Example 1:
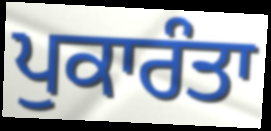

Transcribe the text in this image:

ਪੁਕਾਰੰਤਾ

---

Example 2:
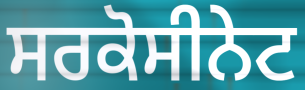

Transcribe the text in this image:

ਸਰਕੋਸੀਨੇਟ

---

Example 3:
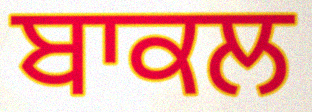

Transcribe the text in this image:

ਬਾਕਲ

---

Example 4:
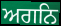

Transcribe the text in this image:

ਅਗਨਿ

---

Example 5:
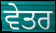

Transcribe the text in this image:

ਵੇਤਰ